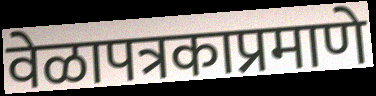
वेळापत्रकाप्रमाणे